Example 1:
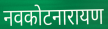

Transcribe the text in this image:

नवकोटनारायण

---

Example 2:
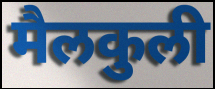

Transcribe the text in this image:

मैलकुली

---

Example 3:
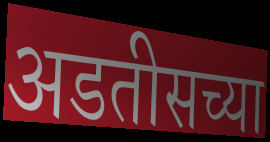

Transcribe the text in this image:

अडतीसच्या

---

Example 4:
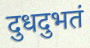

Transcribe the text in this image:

दुधदुभतं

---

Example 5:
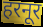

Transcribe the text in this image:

हरनूर